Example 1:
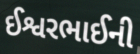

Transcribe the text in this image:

ઈશ્વરભાઈની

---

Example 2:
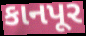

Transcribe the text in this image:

કાનપૂર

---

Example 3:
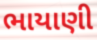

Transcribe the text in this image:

ભાયાણી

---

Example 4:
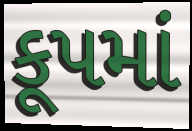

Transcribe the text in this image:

કૂપમાં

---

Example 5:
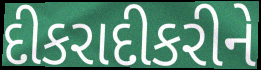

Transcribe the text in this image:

દીકરાદીકરીને